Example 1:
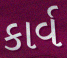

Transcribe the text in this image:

કાર્વ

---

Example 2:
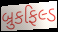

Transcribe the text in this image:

બ્રુકફિલ્ડ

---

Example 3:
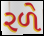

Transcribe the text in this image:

રળે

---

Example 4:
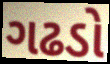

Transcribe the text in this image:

ગઢડો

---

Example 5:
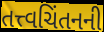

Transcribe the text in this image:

તત્ત્વચિંતનની